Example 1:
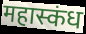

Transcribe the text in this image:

महास्कंध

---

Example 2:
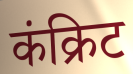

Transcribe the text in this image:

कंक्रिट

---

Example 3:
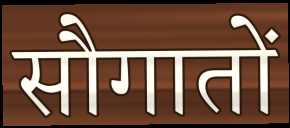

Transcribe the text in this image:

सौगातों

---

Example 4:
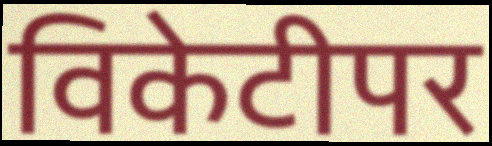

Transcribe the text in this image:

विकेटीपर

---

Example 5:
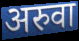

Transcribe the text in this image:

अरुवा